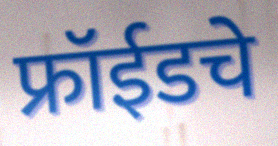
फ्रॉईडचे